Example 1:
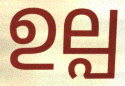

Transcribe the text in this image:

ഉല്പ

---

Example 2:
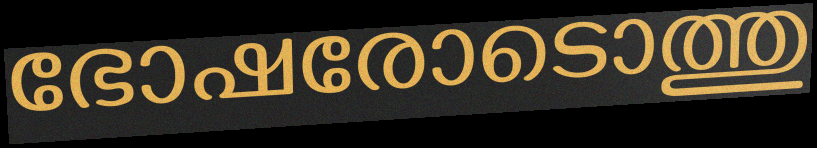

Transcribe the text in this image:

ഭോഷരോടൊത്തു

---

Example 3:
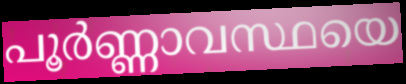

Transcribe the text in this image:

പൂർണ്ണാവസ്ഥയെ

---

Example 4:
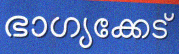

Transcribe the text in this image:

ഭാഗ്യക്കേട്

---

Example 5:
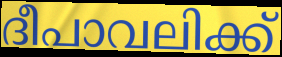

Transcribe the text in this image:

ദീപാവലിക്ക്